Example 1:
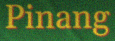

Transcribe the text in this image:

Pinang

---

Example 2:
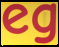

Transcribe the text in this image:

eg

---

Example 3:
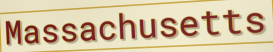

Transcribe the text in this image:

Massachusetts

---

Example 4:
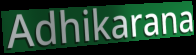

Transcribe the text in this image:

Adhikarana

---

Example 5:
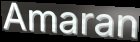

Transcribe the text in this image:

Amaran